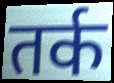
तर्क